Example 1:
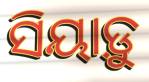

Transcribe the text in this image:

ସିୟାଡ଼ୁ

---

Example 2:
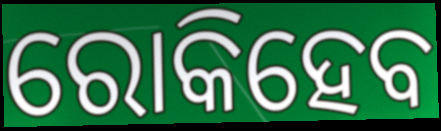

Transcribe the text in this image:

ରୋକିହେବ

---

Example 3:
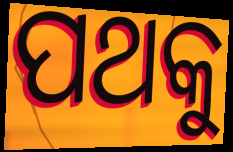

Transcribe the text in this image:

ପଥକୁ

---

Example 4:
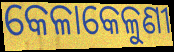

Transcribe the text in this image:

କେଳାକେଳୁଣୀ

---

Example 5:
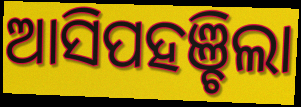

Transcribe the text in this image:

ଆସିପହଞ୍ଚିଲା